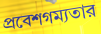
প্রবেশগম্যতার